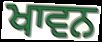
ਖਾਵਨ